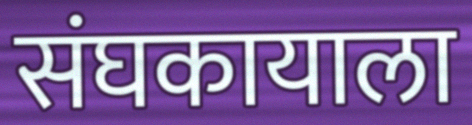
संघकायाला